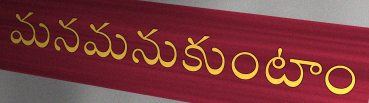
మనమనుకుంటాం